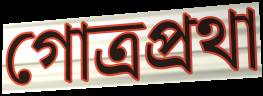
গোত্রপ্রথা